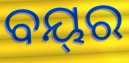
ବୟ୍‌ର